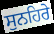
ਸੁਨਹਿਰੇ